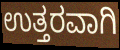
ಉತ್ತರವಾಗಿ